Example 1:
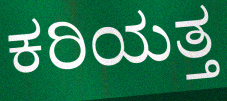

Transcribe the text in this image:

ಕರಿಯತ್ತ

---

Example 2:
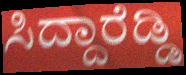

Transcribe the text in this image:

ಸಿದ್ದಾರೆಡ್ಡಿ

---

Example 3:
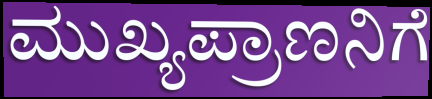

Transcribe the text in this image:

ಮುಖ್ಯಪ್ರಾಣನಿಗೆ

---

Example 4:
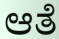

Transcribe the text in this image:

ಆತೆ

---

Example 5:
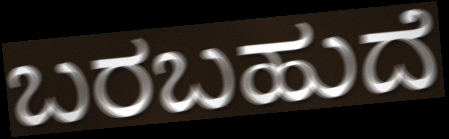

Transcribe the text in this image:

ಬರಬಹುದೆ